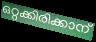
ഒറ്റക്കിരിക്കാന്